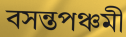
বসন্তপঞ্চমী